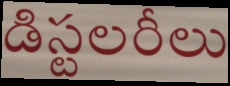
డిస్టలరీలు